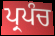
ਪ੍ਰਪੰਚ